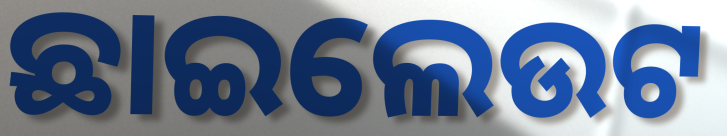
ଛାଇଲେଉଟ